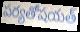
పర్యతోషయత్